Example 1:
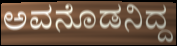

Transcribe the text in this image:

ಅವನೊಡನಿದ್ದ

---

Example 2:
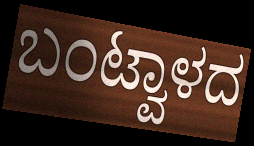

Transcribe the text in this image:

ಬಂಟ್ವಾಳದ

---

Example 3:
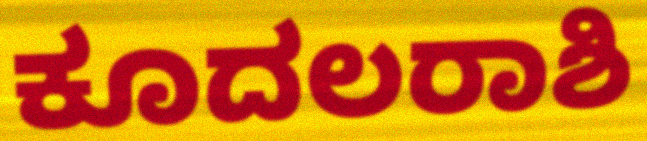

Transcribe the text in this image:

ಕೂದಲರಾಶಿ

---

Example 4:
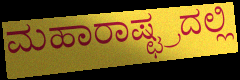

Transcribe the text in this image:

ಮಹಾರಾಷ್ಟ್ರದಲ್ಲಿ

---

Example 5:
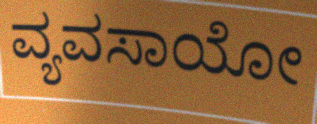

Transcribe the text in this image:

ವ್ಯವಸಾಯೋ